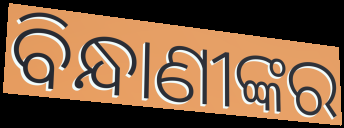
ବିନ୍ଧାଣୀଙ୍କର